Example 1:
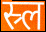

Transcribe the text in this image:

स्र्ल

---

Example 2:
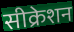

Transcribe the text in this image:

सीक्रेशन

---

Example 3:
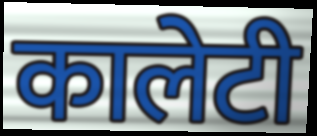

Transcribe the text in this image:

कालेटी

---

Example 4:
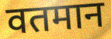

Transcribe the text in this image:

वतमान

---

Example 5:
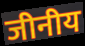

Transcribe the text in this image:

जीनीय